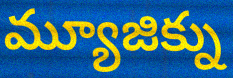
మ్యూజిక్ను